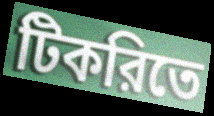
টিকরিতে